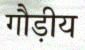
गौड़ीय